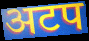
अटप